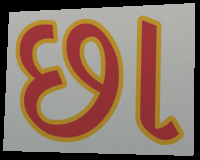
છા